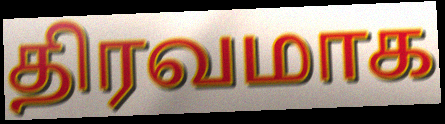
திரவமாக